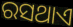
ରସଥାଏ